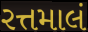
રત્તમાલં